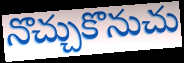
నొచ్చుకొనుచు